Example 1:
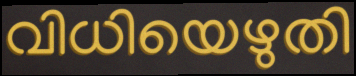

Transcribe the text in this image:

വിധിയെഴുതി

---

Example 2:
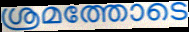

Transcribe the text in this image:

ശ്രമത്തോടെ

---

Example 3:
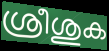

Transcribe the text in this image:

ശ്രീശുക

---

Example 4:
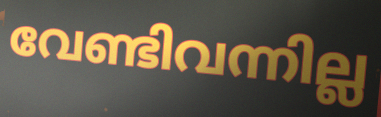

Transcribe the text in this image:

വേണ്ടിവന്നില്ല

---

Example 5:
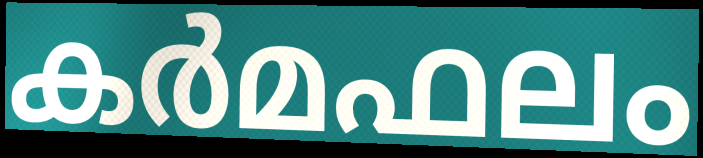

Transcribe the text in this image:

കർമഫലം